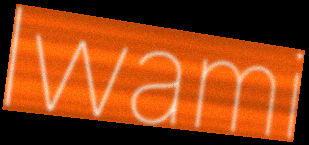
lwami